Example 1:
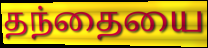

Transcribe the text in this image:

தந்தையை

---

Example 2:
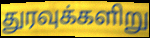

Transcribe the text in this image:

துரவுக்களிறு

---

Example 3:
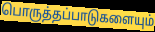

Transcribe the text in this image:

பொருத்தப்பாடுகளையும்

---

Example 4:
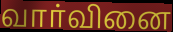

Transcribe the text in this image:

வார்வினை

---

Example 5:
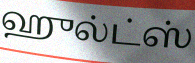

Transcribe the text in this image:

ஹுல்ட்ஸ்